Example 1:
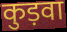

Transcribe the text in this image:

कुड़वा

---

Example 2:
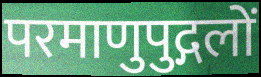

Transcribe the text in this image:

परमाणुपुद्गलों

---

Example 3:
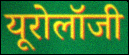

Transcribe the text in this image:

यूरोलॉजी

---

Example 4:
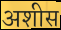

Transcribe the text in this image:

अशीस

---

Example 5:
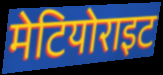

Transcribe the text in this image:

मेटियोराइट